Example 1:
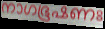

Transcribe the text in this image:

നാഗഭൂഷണഃ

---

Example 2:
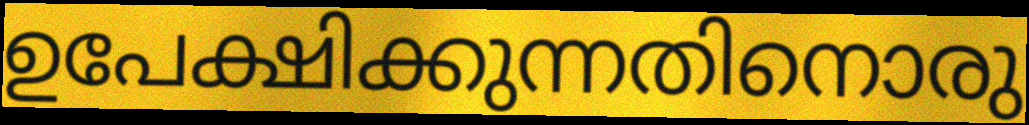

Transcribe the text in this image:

ഉപേക്ഷിക്കുന്നതിനൊരു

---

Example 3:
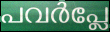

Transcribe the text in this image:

പവർപ്ലേ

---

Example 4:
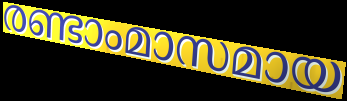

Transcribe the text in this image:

രണ്ടാംമാസമായ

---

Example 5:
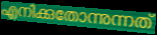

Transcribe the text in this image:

എനിക്കുതോന്നുന്നത്